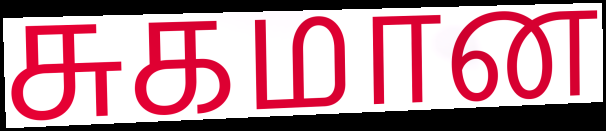
சுகமான